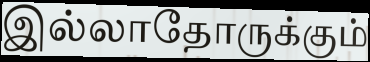
இல்லாதோருக்கும்